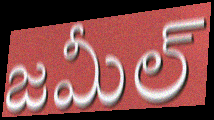
జమీల్